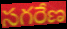
సగరేణ